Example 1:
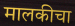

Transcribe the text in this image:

मालकीचा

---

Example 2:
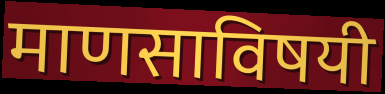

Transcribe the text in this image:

माणसाविषयी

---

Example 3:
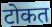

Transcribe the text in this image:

टोकत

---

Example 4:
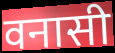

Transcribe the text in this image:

वनासी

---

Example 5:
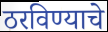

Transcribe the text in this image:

ठरविण्याचे